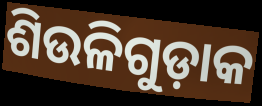
ଶିଉଳିଗୁଡ଼ାକ